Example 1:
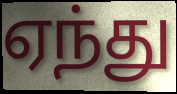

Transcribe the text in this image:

ஏந்து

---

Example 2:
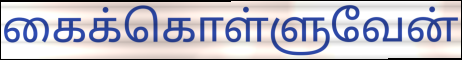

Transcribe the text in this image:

கைக்கொள்ளுவேன்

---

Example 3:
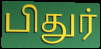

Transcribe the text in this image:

பிதுர்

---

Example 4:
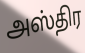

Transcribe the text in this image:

அஸ்திர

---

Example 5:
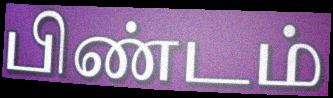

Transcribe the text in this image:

பிண்டம்